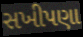
સખીપણા